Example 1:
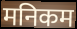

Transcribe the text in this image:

मनिकम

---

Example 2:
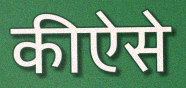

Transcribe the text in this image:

कीऐसे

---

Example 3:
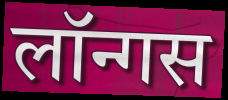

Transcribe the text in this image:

लॉन्गस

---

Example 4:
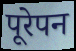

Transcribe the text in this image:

पूरेपन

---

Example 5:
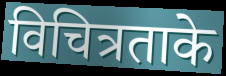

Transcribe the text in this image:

विचित्रताके